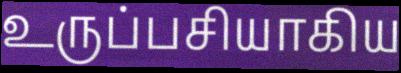
உருப்பசியாகிய